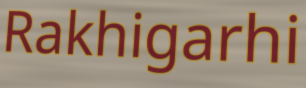
Rakhigarhi